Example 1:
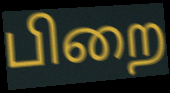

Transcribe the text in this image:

பிறை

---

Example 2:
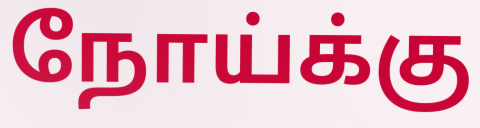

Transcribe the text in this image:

நோய்க்கு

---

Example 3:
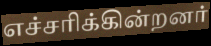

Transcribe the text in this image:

எச்சரிக்கின்றனர்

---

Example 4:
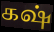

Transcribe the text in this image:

கஷ்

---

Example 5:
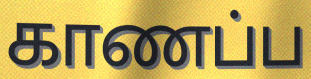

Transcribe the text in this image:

காணப்ப